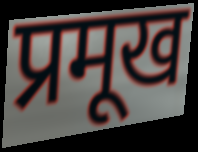
प्रमूख